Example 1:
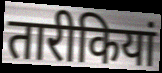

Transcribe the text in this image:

तारीकियां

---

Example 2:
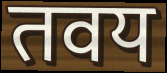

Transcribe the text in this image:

तवय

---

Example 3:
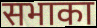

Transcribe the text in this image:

सभाका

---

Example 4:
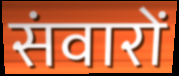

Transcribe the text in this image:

संवारों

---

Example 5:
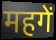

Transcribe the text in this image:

महगें